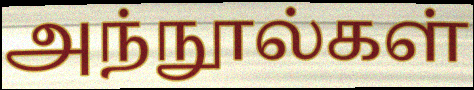
அந்நூல்கள்